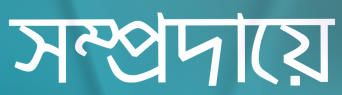
সম্প্ৰদায়ে